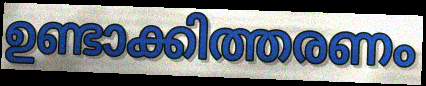
ഉണ്ടാക്കിത്തരണം